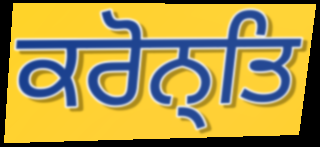
ਕਰੋਨ੍ਤਿ